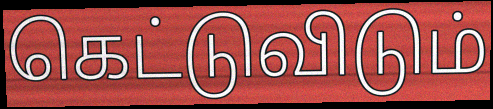
கெட்டுவிடும்